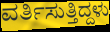
ವರ್ತಿಸುತ್ತಿದ್ದಳು